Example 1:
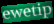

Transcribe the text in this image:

ewetip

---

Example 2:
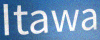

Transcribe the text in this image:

Itawa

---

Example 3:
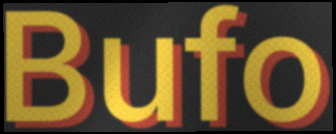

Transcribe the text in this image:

Bufo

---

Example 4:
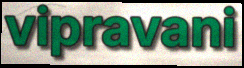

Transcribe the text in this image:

vipravani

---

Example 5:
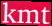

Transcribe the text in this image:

kmt